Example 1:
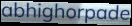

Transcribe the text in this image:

abhighorpade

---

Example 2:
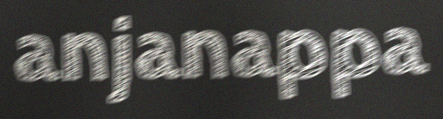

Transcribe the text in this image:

anjanappa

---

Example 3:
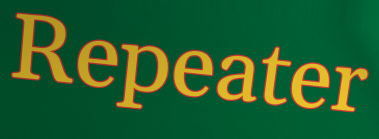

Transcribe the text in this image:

Repeater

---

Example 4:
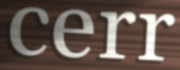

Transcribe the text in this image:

cerr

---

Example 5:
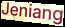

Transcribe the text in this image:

Jeniang